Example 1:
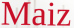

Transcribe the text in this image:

Maiz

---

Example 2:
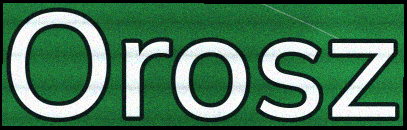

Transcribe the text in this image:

Orosz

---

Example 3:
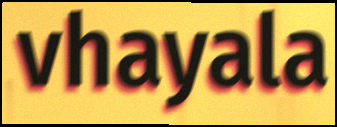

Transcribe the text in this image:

vhayala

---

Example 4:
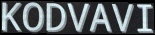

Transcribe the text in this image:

KODVAVI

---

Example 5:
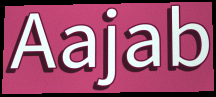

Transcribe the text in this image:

Aajab